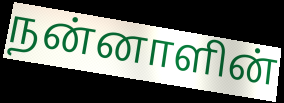
நன்னாளின்